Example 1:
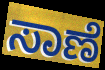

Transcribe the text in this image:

ಸಾಣೆ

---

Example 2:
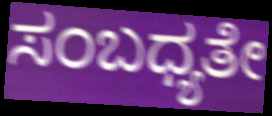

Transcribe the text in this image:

ಸಂಬಧ್ಯತೇ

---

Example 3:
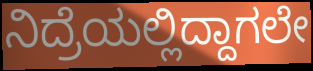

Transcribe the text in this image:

ನಿದ್ರೆಯಲ್ಲಿದ್ದಾಗಲೇ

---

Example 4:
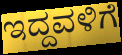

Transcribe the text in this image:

ಇದ್ದವಳಿಗೆ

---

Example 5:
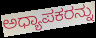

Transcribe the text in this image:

ಅಧ್ಯಾಪಕರನ್ನು